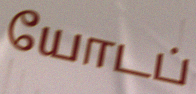
யோடப்